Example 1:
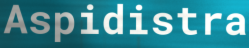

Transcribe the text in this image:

Aspidistra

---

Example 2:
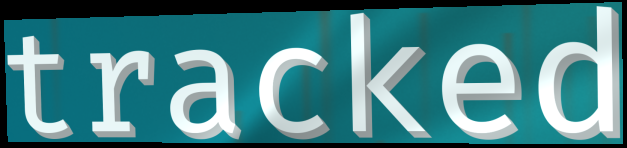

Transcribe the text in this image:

tracked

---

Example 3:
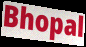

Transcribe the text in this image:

Bhopal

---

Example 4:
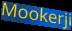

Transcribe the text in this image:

Mookerji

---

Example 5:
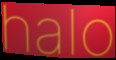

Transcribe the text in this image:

halo